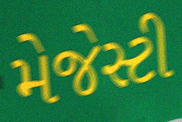
મેજેસ્ટી